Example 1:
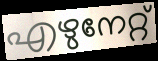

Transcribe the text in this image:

എഴുനേറ്റ്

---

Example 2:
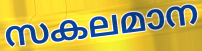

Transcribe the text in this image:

സകലമാന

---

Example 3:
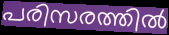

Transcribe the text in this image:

പരിസരത്തിൽ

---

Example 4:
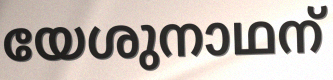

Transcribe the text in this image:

യേശുനാഥന്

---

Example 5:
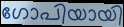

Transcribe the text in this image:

ഗോപിയായി